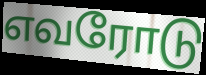
எவரோடு